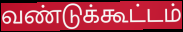
வண்டுக்கூட்டம்